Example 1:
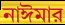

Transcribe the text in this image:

নাঈমার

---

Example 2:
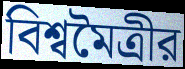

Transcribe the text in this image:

বিশ্বমৈত্রীর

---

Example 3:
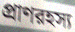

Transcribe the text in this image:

প্রাণরহস্য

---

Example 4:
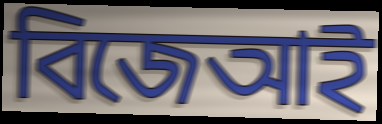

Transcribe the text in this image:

বিজেআই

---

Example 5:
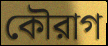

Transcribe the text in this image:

কৌরাগ